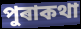
পুৰাকথা